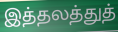
இத்தலத்துத்